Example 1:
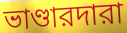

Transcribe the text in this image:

ভাণ্ডারদারা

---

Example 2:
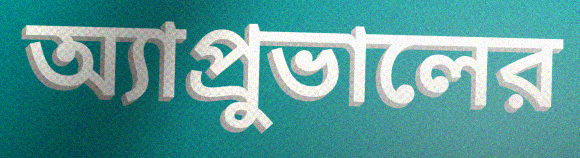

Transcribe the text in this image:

অ্যাপ্রুভালের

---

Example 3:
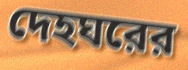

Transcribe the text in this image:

দেহঘরের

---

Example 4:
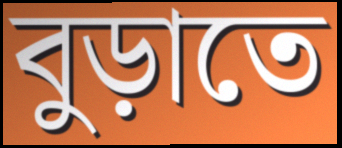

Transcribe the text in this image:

বুড়াতে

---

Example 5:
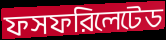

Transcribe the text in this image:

ফসফরিলেটেড